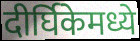
दीर्घिकेमध्ये